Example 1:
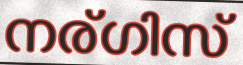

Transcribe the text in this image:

നര്ഗിസ്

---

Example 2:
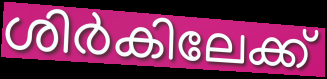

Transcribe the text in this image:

ശിർകിലേക്ക്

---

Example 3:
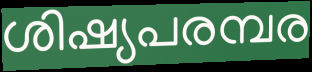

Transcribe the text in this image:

ശിഷ്യപരമ്പര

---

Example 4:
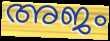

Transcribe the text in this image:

അജം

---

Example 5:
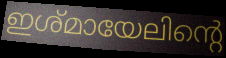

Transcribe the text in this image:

ഇശ്മായേലിന്റെ